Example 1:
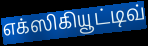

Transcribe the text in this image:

எக்ஸிகியூட்டிவ்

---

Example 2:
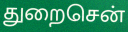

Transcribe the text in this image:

துறைசென்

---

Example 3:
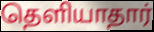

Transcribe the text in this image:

தெளியாதார்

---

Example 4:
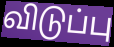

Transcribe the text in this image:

விடுப்பு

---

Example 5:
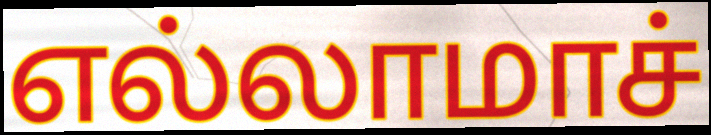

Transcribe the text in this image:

எல்லாமாச்